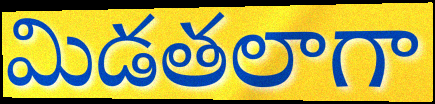
మిడతలాగా